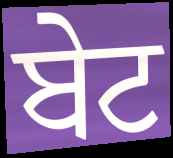
ਬੇਟ